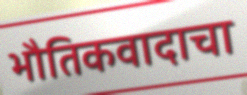
भौतिकवादाचा